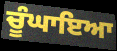
ਚੂੰਘਾਇਆ